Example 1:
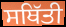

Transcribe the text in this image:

ਸਥਿੱਤੀ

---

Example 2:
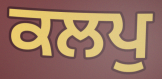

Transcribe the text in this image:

ਕਲਪੁ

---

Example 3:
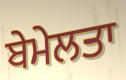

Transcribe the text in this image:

ਬੇਮੇਲਤਾ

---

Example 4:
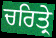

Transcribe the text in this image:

ਚਰਿਤ੍ਰੇ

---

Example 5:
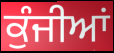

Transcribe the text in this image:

ਕੁੰਜੀਆਂ